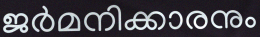
ജർമനിക്കാരനും